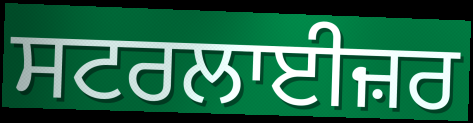
ਸਟਰਲਾਈਜ਼ਰ